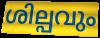
ശില്പവും